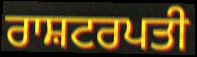
ਰਾਸ਼ਟਰਪਤੀ